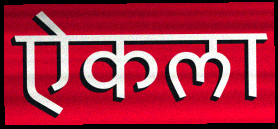
ऐकला